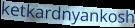
ketkardnyankosh